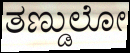
ತಣ್ಡುಲೋ